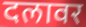
दलावर